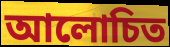
আলোচিত